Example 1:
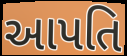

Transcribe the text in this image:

આપતિ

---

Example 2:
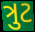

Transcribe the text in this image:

ત્રુટ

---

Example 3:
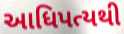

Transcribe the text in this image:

આધિપત્યથી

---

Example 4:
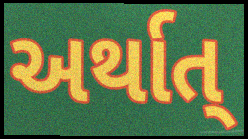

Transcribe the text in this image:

અર્થાત્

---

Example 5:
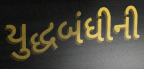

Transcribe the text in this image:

યુદ્ધબંધીની